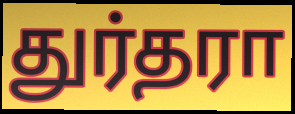
துர்தரா